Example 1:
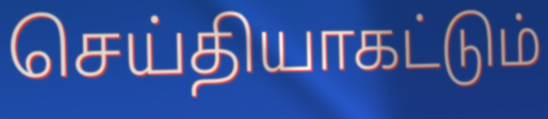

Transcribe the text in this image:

செய்தியாகட்டும்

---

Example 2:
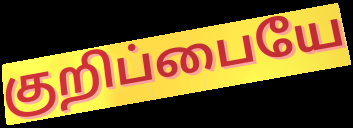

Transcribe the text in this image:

குறிப்பையே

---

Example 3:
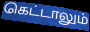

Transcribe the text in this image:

கெட்டாலும்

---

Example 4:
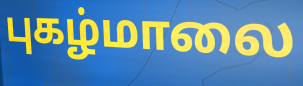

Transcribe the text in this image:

புகழ்மாலை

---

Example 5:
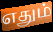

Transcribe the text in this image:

எதும்